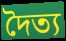
দৈত্য